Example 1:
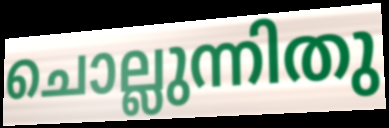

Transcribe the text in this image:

ചൊല്ലുന്നിതു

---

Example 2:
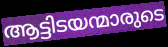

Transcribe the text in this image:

ആട്ടിടയന്മാരുടെ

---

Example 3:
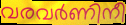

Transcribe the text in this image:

വരവർണിനീ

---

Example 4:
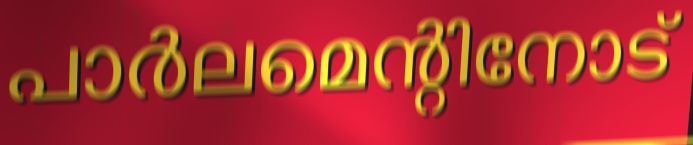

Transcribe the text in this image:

പാർലമെന്റിനോട്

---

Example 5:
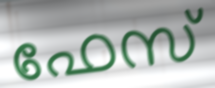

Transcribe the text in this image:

ഫേസ്